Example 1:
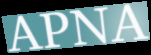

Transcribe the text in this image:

APNA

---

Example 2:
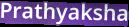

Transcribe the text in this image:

Prathyaksha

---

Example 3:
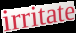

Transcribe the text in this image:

irritate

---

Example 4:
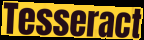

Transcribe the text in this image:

Tesseract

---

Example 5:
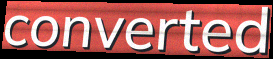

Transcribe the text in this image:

converted